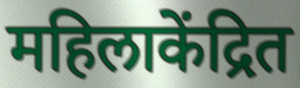
महिलाकेंद्रित